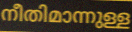
നീതിമാന്നുള്ള